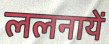
ललनायें